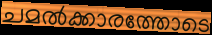
ചമൽക്കാരത്തോടെ